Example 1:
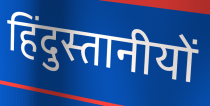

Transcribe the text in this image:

हिंदुस्तानीयों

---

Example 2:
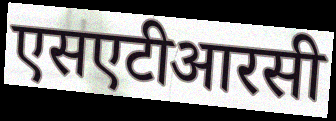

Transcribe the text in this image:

एसएटीआरसी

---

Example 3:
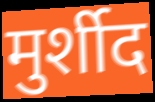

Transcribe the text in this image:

मुर्शीद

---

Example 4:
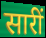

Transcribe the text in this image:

सारीं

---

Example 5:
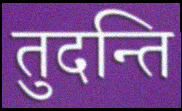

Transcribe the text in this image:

तुदन्ति